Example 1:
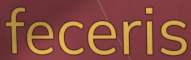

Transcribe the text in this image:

feceris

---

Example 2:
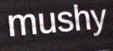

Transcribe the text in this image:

mushy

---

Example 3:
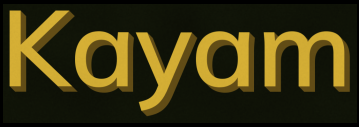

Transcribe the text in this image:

Kayam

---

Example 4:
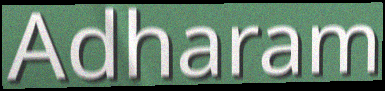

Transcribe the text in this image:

Adharam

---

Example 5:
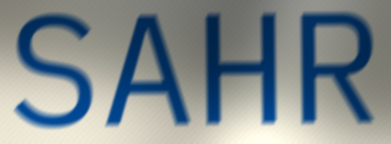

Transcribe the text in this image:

SAHR